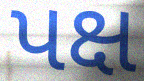
પક્ષ